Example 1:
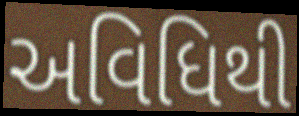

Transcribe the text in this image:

અવિધિથી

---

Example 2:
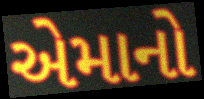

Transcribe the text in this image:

એમાનો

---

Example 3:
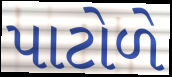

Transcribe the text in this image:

પાટોળે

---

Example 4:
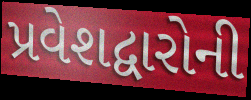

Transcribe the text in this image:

પ્રવેશદ્વારોની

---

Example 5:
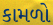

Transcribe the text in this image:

કામળો